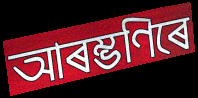
আৰম্ভণিৰে